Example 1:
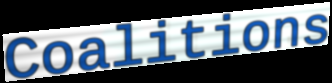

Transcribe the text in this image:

Coalitions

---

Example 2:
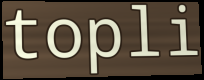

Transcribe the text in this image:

topli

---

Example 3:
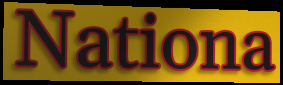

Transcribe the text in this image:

Nationa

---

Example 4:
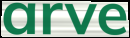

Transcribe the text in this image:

arve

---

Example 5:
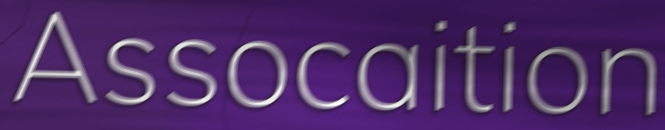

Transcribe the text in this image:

Assocaition